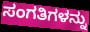
ಸಂಗತಿಗಳನ್ನು